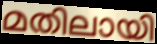
മതിലായി